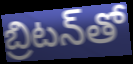
బ్రిటన్‌తో